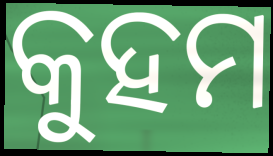
କୁହମ